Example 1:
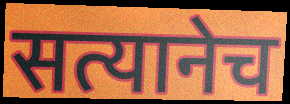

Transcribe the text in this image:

सत्यानेच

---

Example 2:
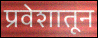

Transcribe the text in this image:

प्रवेशातून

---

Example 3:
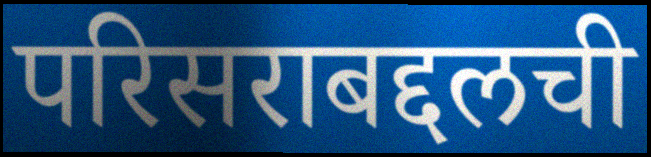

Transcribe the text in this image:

परिसराबद्दलची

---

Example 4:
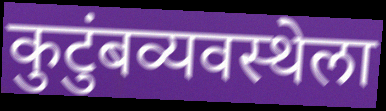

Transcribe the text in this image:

कुटुंबव्यवस्थेला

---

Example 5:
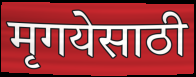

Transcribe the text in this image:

मृगयेसाठी